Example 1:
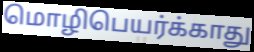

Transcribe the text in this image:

மொழிபெயர்க்காது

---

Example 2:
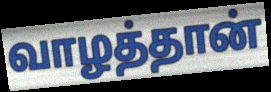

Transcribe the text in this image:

வாழத்தான்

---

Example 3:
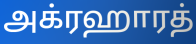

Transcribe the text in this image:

அக்ரஹாரத்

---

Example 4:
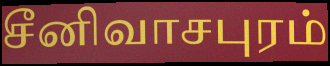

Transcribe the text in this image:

சீனிவாசபுரம்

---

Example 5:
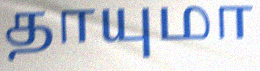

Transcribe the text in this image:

தாயுமா